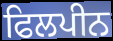
ਫਿਲਪੀਨ